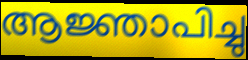
ആജ്ഞാപിച്ചു